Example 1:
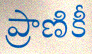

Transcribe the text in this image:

ప్రాణికీ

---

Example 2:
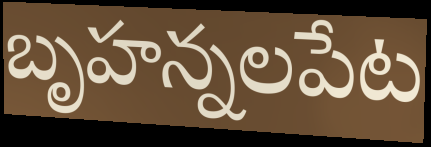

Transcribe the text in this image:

బృహన్నలపేట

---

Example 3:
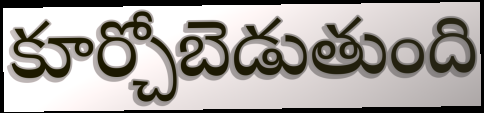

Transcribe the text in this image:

కూర్చోబెడుతుంది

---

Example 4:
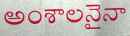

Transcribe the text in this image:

అంశాలనైనా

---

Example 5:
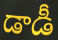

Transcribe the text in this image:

డాడీ